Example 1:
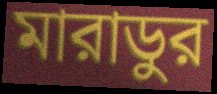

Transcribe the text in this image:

মারাডুর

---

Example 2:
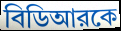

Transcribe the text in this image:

বিডিআরকে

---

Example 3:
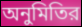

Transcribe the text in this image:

অনুমিতির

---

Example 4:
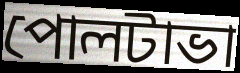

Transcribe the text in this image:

পোলটাভা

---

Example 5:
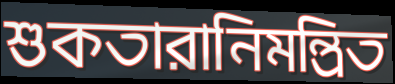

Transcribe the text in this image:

শুকতারানিমন্ত্রিত